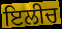
ਇਲੀਚ